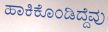
ಹಾಕಿಕೊಂಡಿದ್ದೆವು